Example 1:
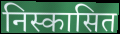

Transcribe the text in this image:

निस्कासित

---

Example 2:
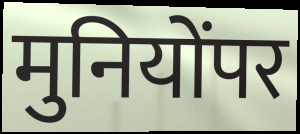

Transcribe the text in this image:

मुनियोंपर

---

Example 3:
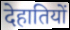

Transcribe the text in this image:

देहातियों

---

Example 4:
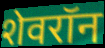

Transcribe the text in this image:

शेवरॉन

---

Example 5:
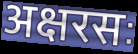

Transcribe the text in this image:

अक्षरसः